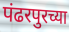
पंढरपुरच्या